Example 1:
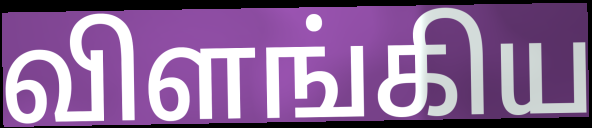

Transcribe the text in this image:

விளங்கிய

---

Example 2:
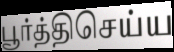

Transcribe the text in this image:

பூர்த்திசெய்ய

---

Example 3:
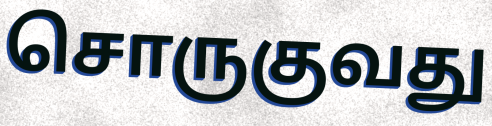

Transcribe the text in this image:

சொருகுவது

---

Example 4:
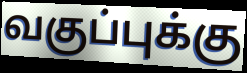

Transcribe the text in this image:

வகுப்புக்கு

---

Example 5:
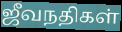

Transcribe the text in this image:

ஜீவநதிகள்